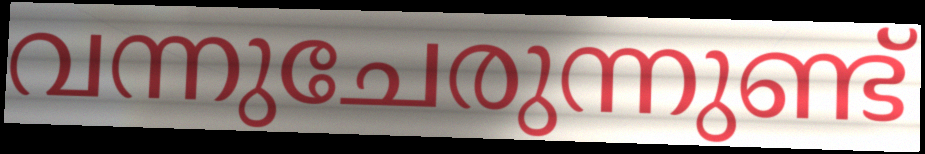
വന്നുചേരുന്നുണ്ട്